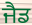
ਜੈਡ